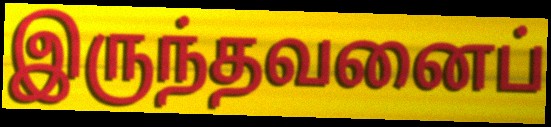
இருந்தவனைப்